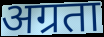
अग्रता